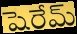
షెరేమ్